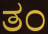
ತಂ